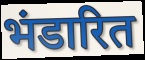
भंडारित